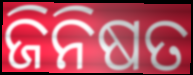
ଜିନିଷତ